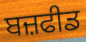
ਬਜ਼ਫੀਡ